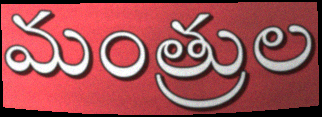
మంత్రుల